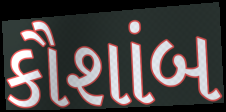
કૌશાંબ